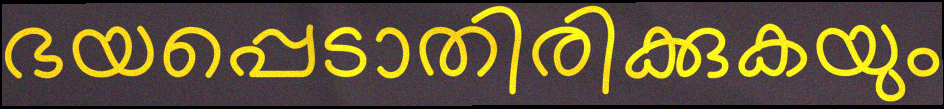
ഭയപ്പെടാതിരിക്കുകയും